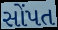
સોંપત